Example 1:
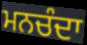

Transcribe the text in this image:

ਮਨਚੰਦਾ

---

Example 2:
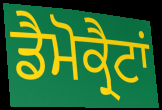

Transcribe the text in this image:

ਡੈਮੋਕ੍ਰੈਟਾਂ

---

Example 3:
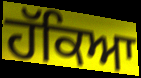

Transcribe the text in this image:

ਹੱਕਿਆ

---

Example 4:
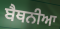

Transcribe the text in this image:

ਬੈਥਨੀਆ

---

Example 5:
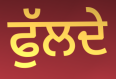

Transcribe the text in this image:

ਫੁੱਲਦੇ